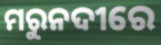
ମରୁନଦୀରେ